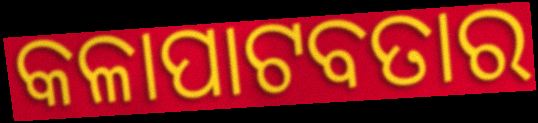
କଳାପାଟବତାର